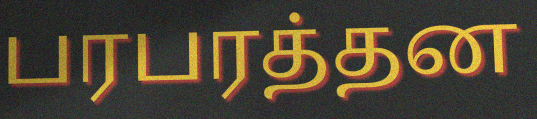
பரபரத்தன